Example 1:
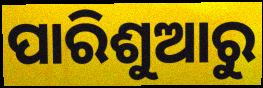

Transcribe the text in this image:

ପାରିଶୁଆରୁ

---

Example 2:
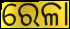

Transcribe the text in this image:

ରେଳା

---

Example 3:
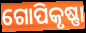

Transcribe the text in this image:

ଗୋପିକୃଷ୍ଣା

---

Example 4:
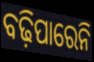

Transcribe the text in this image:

ବଢ଼ିପାରେନି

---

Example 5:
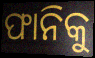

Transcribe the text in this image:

ଫାନିକୁ